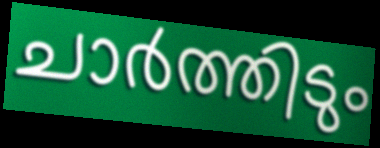
ചാർത്തിടും